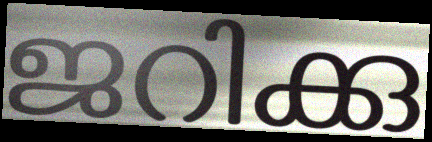
ജറിക്കു